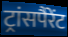
ट्रांसपैरेंट